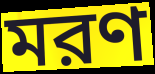
মরণ